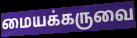
மையக்கருவை